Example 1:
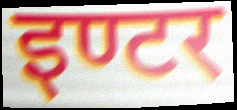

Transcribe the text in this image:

इण्टर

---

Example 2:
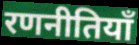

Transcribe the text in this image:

रणनीतियाँ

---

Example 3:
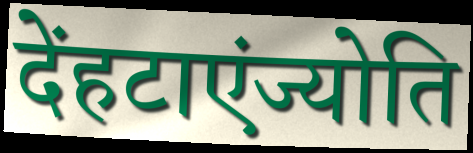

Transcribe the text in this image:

देंहटाएंज्योति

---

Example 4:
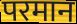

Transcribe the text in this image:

परमान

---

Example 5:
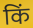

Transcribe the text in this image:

किं